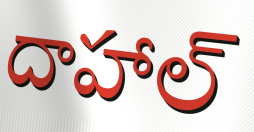
దాహాల్